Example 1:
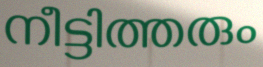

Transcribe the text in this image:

നീട്ടിത്തരും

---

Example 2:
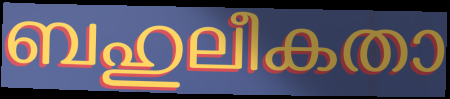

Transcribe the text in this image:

ബഹുലീകതാ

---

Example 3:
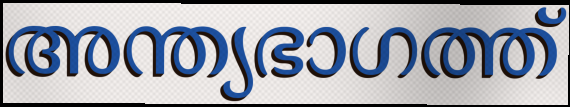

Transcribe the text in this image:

അന്ത്യഭാഗത്ത്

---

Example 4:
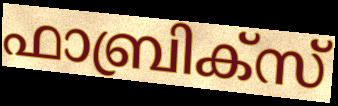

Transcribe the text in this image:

ഫാബ്രിക്സ്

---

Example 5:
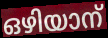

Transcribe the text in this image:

ഒഴിയാന്